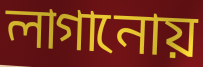
লাগানোয়